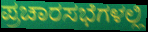
ಪ್ರಚಾರಸಭೆಗಳಲ್ಲಿ